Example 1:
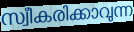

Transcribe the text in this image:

സ്വീകരിക്കാവുന്ന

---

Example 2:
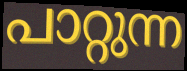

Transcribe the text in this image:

പാറ്റുന്ന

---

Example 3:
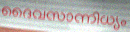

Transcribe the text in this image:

ദൈവസാന്നിധ്യം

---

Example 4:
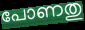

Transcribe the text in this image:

പോണതു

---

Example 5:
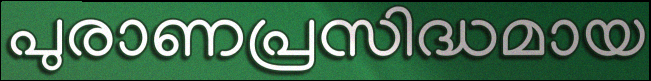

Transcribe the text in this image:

പുരാണപ്രസിദ്ധമായ